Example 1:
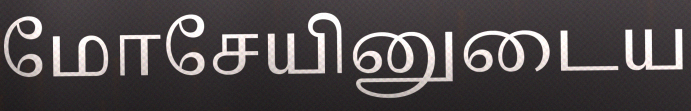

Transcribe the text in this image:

மோசேயினுடைய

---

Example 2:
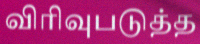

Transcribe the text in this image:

விரிவுபடுத்த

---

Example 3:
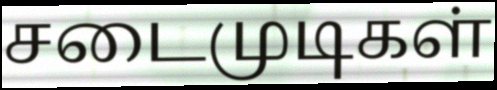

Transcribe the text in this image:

சடைமுடிகள்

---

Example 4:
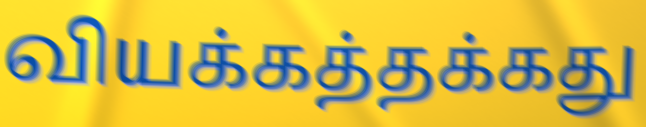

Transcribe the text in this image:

வியக்கத்தக்கது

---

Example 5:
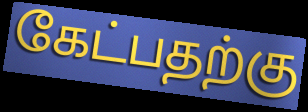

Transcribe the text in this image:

கேட்பதற்கு